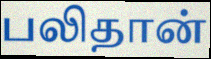
பலிதான்